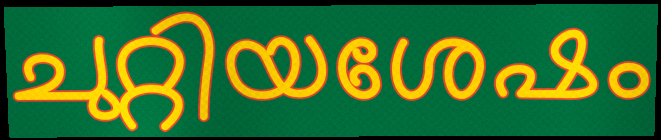
ചുറ്റിയശേഷം